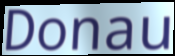
Donau